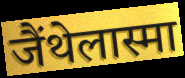
जैंथेलास्मा